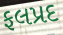
ફલપ્રદ